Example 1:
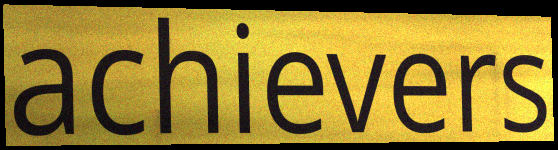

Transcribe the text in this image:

achievers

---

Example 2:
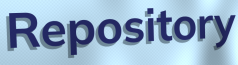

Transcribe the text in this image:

Repository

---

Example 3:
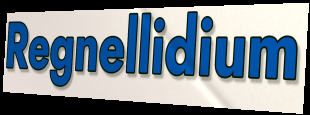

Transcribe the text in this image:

Regnellidium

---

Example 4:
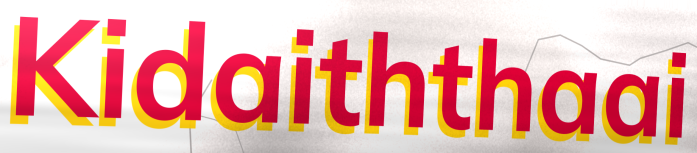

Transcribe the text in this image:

Kidaiththaai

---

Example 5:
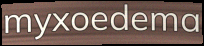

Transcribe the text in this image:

myxoedema